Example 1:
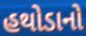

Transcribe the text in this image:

હથોડાનો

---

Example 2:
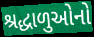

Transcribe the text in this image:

શ્રદ્ધાળુઓનો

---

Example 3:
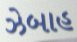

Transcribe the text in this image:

ઝેબાહ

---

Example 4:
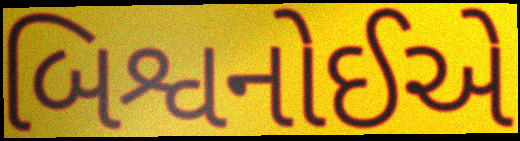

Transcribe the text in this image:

બિશ્વનોઈએ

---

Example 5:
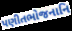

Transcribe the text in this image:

પણીતભોજનાનિ